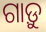
ଗାଡ଼ୁ